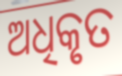
ଅଧିକୃତ